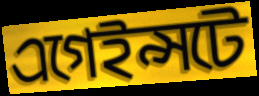
এগেইন্সটে